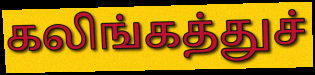
கலிங்கத்துச்